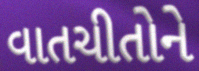
વાતચીતોને